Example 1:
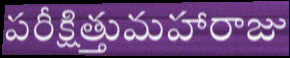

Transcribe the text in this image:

పరీక్షిత్తుమహారాజు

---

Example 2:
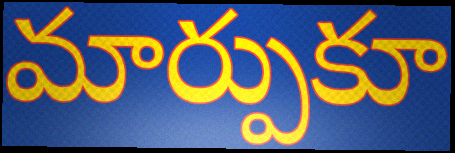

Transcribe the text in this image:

మార్పుకూ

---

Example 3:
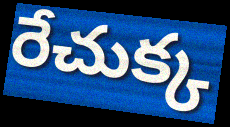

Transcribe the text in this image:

రేచుక్క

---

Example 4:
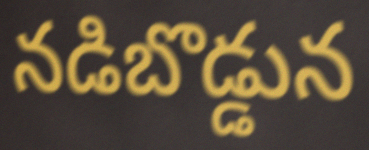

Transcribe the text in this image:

నడిబొడ్డున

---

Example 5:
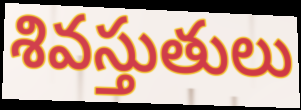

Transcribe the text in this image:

శివస్తుతులు